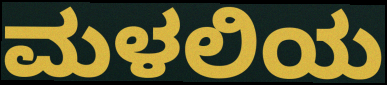
ಮಳಲಿಯ